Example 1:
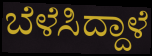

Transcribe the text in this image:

ಬೆಳೆಸಿದ್ದಾಳೆ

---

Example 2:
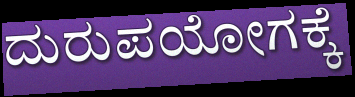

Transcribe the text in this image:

ದುರುಪಯೋಗಕ್ಕೆ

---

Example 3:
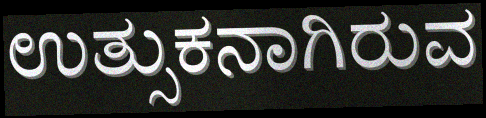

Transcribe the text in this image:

ಉತ್ಸುಕನಾಗಿರುವ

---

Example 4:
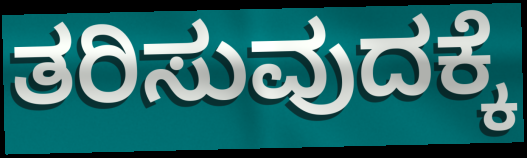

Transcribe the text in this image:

ತರಿಸುವುದಕ್ಕೆ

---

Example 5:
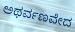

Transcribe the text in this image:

ಅಥರ್ವಣವೇದ